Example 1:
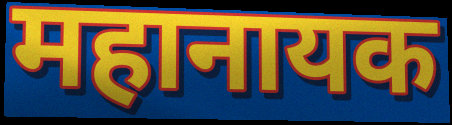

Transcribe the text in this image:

महानायक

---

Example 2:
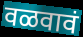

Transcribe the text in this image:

वळवावं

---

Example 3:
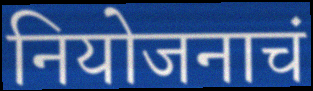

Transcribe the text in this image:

नियोजनाचं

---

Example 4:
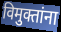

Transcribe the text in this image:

विमुक्तांना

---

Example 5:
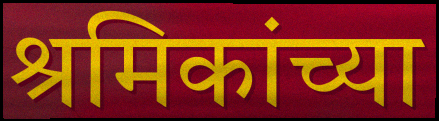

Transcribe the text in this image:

श्रमिकांच्या